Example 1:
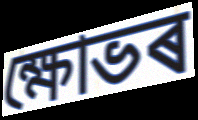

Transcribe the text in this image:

ক্ষোভৰ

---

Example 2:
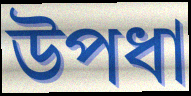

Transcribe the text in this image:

উপধা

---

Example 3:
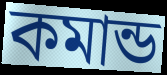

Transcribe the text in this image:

কমান্ড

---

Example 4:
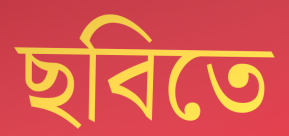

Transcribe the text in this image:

ছবিতে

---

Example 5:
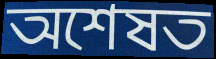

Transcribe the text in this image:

অশেষত